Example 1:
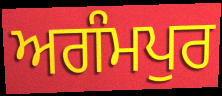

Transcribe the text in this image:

ਅਗੰਮਪੁਰ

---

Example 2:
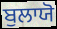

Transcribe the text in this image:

ਬੁਲਾਯੋ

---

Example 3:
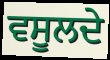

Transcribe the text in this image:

ਵਸੂਲਦੇ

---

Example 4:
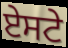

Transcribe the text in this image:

ਏਸਟੇ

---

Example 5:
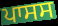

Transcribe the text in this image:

ਪਾਸਸ